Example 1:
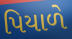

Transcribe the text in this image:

પિયાળે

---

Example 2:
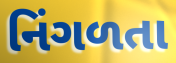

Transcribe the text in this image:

નિંગળતા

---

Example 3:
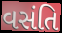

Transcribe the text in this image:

વસંતિ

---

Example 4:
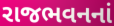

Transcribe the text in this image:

રાજભવનનાં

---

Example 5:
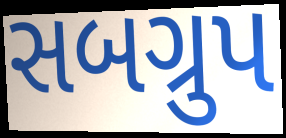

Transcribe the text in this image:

સબગ્રુપ